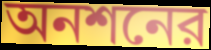
অনশনের